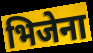
भिजेना